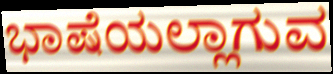
ಭಾಷೆಯಲ್ಲಾಗುವ